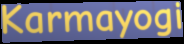
Karmayogi